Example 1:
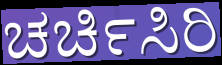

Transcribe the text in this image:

ಚರ್ಚಿಸಿರಿ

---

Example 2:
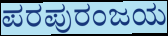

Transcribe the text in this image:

ಪರಪುರಂಜಯ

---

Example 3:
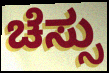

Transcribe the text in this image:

ಚೆಸ್ಸು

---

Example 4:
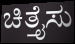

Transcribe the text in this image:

ಚಿತ್ತೈಸು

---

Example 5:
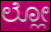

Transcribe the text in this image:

ಲ್ಲೋ